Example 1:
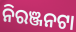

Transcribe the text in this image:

ନିରଞ୍ଜନଟା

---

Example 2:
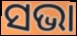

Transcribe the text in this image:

ସଭା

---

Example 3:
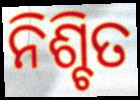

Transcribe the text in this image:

ନିଶ୍ଚିତ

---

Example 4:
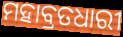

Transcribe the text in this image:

ମହାବ୍ରତଧାରୀ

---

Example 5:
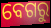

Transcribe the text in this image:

ବେଗରୁ